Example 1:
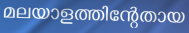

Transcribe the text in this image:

മലയാളത്തിന്റേതായ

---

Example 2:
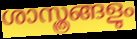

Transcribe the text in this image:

ശാസ്ത്രങ്ങളും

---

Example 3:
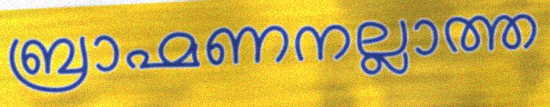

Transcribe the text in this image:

ബ്രാഹ്മണനല്ലാത്ത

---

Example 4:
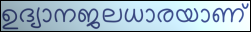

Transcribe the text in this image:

ഉദ്യാനജലധാരയാണ്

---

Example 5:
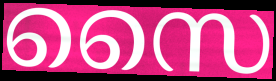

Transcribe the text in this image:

സൈ